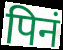
पिनं